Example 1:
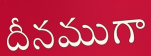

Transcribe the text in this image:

దీనముగా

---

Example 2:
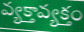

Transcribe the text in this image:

వ్యక్తావ్యక్తం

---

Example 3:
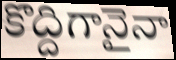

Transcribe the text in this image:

కొద్దిగానైనా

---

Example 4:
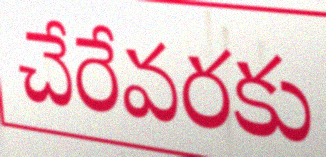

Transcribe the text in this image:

చేరేవరకు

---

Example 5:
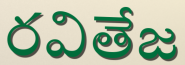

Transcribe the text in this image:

రవితేజ